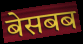
बेसबब